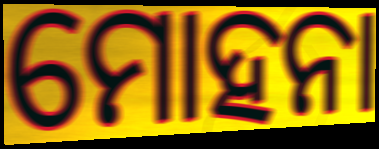
ମୋହନା